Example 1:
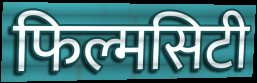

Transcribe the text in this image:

फिल्मसिटी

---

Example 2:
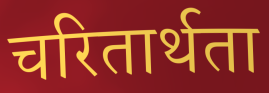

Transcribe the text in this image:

चरितार्थता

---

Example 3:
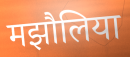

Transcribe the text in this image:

मझौलिया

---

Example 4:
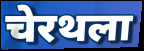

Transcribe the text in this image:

चेरथला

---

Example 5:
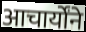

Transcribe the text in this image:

आचार्योंने